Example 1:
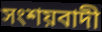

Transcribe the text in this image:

সংশয়বাদী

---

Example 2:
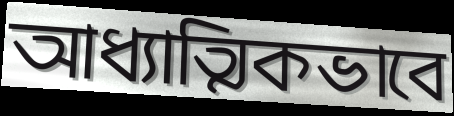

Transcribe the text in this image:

আধ্যাত্মিকভাবে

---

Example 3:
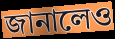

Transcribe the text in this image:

জানালেও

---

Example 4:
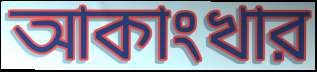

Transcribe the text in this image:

আকাংখার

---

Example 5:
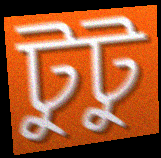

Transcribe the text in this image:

টুটু